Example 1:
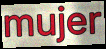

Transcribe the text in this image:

mujer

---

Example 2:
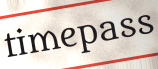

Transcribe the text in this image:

timepass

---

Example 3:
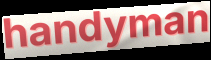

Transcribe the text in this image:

handyman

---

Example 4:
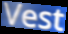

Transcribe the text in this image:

Vest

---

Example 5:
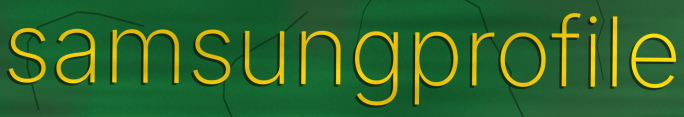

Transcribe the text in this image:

samsungprofile